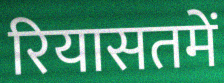
रियासतमें